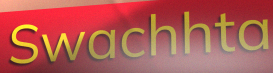
Swachhta